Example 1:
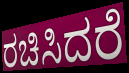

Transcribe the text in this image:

ರಚಿಸಿದರೆ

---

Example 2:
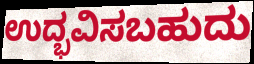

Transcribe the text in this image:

ಉದ್ಭವಿಸಬಹುದು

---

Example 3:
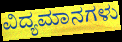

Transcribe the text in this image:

ವಿದ್ಯಮಾನಗಳು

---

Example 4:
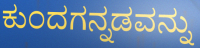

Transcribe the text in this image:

ಕುಂದಗನ್ನಡವನ್ನು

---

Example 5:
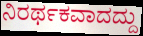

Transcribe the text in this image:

ನಿರರ್ಥಕವಾದದ್ದು